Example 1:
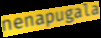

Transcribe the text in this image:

nenapugala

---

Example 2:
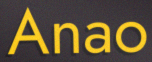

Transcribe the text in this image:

Anao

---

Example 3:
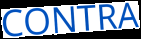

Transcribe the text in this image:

CONTRA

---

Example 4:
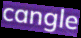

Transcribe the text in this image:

cangle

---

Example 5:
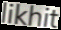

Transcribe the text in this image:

likhit